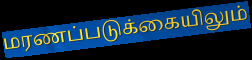
மரணப்படுக்கையிலும்